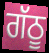
ਗੱਠੂ